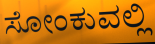
ಸೋಂಕುವಲ್ಲಿ